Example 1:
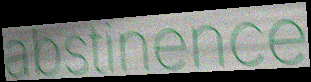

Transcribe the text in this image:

abstinence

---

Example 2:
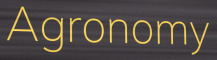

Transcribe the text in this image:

Agronomy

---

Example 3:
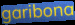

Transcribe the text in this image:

garibona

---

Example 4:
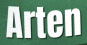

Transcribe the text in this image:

Arten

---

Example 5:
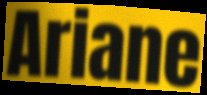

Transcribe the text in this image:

Ariane